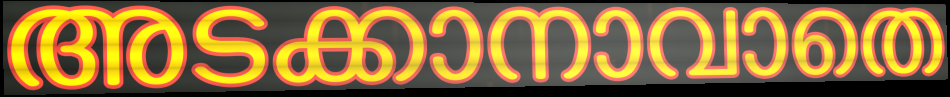
അടക്കാനാവാതെ